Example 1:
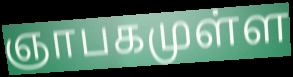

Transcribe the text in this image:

ஞாபகமுள்ள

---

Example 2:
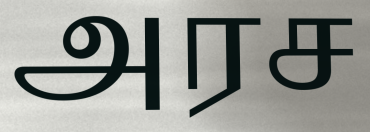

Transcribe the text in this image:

அரச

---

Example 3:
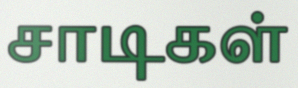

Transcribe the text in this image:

சாடிகள்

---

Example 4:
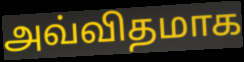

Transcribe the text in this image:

அவ்விதமாக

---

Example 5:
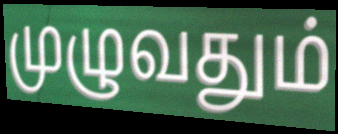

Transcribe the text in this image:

முழுவதும்